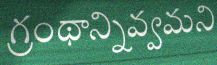
గ్రంథాన్నివ్వమని